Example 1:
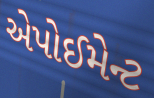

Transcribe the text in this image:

એપોઈમેન્ટ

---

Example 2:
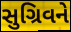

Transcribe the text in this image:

સુગ્રિવને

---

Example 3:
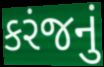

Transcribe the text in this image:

કરંજનું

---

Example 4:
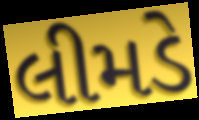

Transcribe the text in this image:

લીમડે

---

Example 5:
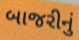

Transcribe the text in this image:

બાજરીનું